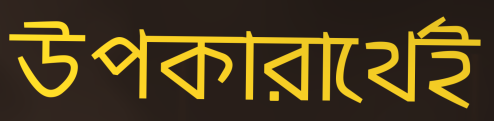
উপকারার্থেই